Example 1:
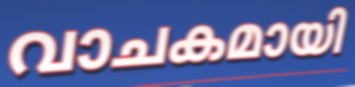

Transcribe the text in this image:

വാചകമായി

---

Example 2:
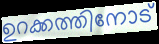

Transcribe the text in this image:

ഉറക്കത്തിനോട്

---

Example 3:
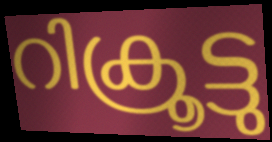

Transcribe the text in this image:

റിക്രൂട്ടു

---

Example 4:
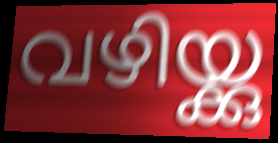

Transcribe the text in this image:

വഴിയ്ക്കു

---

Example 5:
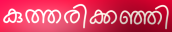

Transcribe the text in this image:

കുത്തരിക്കഞ്ഞി